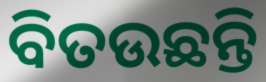
ବିତଉଛନ୍ତି